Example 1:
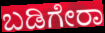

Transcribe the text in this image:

ಬಡಿಗೇರಾ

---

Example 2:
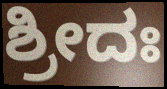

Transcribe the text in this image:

ಶ್ರೀದಃ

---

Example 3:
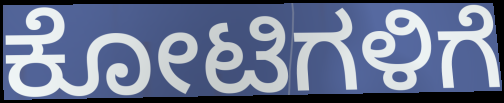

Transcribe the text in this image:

ಕೋಟಿಗಳಿಗೆ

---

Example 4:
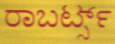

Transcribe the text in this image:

ರಾಬರ್ಟ್ಸ್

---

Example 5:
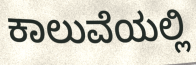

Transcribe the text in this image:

ಕಾಲುವೆಯಲ್ಲಿ